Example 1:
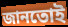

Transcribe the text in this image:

জানতোই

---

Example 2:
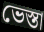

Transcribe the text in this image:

ভেস্তা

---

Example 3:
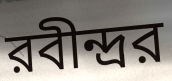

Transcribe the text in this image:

রবীন্দ্রর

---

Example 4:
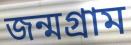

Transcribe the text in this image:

জন্মগ্রাম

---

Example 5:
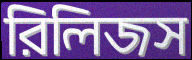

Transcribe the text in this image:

রিলিজস